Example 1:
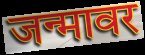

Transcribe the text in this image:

जन्मावर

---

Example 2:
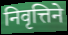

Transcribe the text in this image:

निवृत्तिने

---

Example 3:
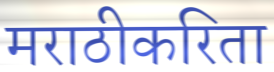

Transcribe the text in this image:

मराठीकरिता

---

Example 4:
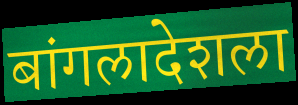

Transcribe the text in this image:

बांगलादेशला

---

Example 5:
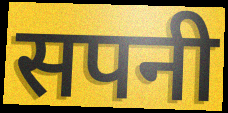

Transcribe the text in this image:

सपनी